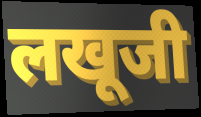
लखूजी